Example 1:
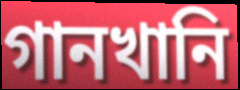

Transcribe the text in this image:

গানখানি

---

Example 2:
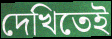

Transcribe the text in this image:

দেখিতেই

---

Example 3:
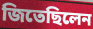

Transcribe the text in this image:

জিতেছিলেন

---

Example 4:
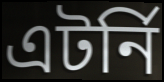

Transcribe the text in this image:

এটর্নি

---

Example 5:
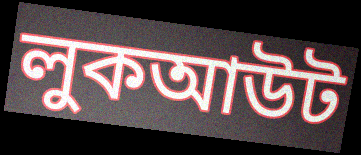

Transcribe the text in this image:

লুকআউট